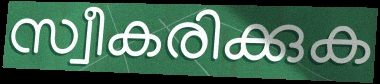
സ്വീകരിക്കുക